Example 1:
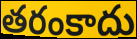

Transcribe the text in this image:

తరంకాదు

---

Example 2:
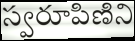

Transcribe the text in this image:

స్వరూపిణిని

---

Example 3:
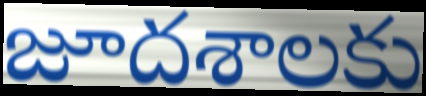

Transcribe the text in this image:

జూదశాలకు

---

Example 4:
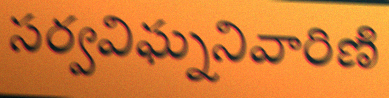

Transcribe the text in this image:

సర్వవిఘ్ననివారిణి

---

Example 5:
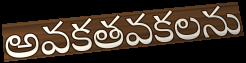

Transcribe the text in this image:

అవకతవకలను